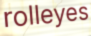
rolleyes